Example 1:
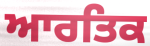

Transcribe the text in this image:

ਆਰਤਿਕ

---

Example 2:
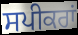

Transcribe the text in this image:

ਸਪੀਕਰਾਂ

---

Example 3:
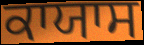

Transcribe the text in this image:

ਕਾਯਾਸ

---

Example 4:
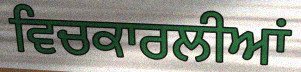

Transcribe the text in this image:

ਵਿਚਕਾਰਲੀਆਂ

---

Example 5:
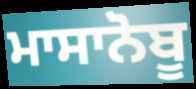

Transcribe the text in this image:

ਮਾਸਾਨੋਬੂ